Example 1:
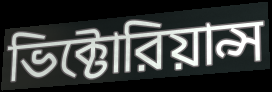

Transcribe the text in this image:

ভিক্টোরিয়ান্স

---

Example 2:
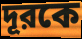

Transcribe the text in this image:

দূরকে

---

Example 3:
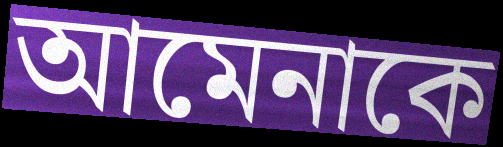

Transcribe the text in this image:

আমেনাকে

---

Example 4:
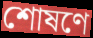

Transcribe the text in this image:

শোষণে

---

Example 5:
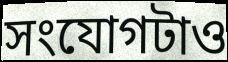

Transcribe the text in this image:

সংযোগটাও